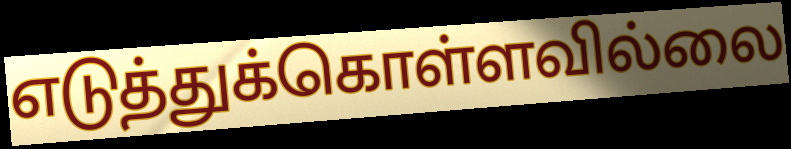
எடுத்துக்கொள்ளவில்லை